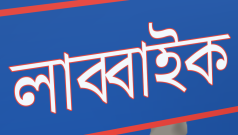
লাব্বাইক